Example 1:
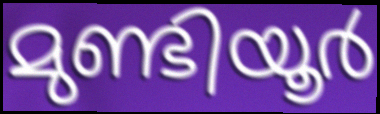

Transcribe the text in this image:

മുണ്ടിയൂർ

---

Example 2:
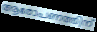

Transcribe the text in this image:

ആരോപണത്തിന്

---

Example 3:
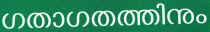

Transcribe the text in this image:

ഗതാഗതത്തിനും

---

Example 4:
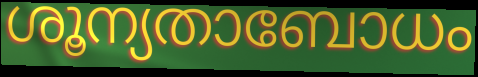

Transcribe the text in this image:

ശൂന്യതാബോധം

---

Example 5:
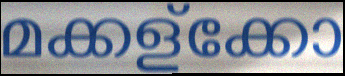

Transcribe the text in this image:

മക്കള്ക്കോ